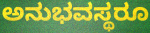
ಅನುಭವಸ್ಥರೂ